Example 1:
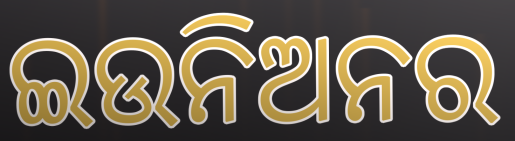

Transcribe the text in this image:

ଇଉନିଅନର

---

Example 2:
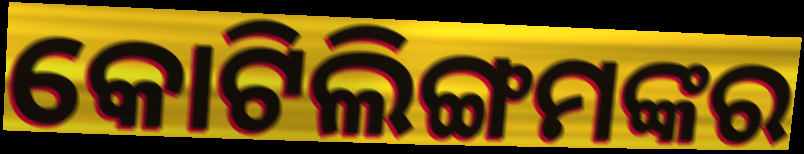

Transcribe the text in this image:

କୋଟିଲିଙ୍ଗମଙ୍କର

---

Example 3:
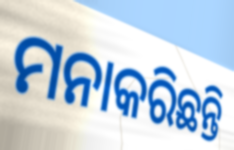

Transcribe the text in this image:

ମନାକରିଛନ୍ତି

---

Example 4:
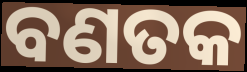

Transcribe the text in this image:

ବଣତକ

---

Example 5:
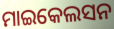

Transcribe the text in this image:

ମାଇକେଲସନ